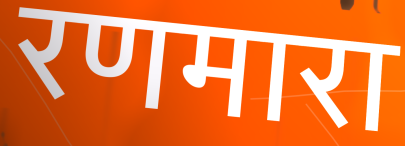
रणमारा